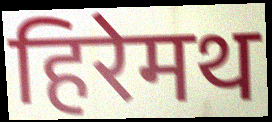
हिरेमथ